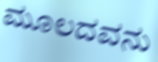
ಮೂಲದವನು